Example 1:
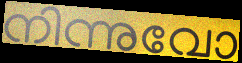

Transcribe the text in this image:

നിന്നുവോ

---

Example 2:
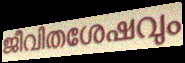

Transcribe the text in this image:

ജീവിതശേഷവും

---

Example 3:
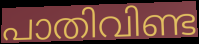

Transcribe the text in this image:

പാതിവിണ്ട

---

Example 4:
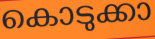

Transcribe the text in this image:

കൊടുക്കാ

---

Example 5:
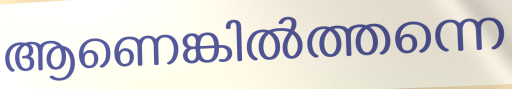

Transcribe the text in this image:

ആണെങ്കിൽത്തന്നെ